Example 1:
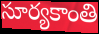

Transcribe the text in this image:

సూర్యకాంతి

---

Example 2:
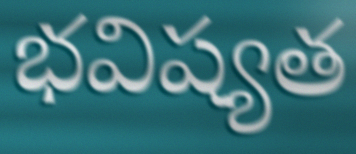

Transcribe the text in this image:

భవిష్యత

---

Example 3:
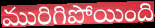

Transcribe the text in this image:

మురిగిపోయింది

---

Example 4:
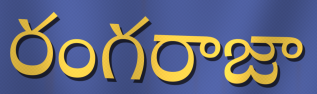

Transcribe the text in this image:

రంగరాజా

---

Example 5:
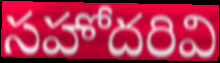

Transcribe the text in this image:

సహోదరివి